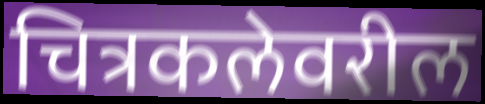
चित्रकलेवरील